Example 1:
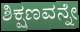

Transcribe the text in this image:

ಶಿಕ್ಷಣವನ್ನೇ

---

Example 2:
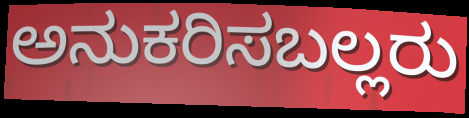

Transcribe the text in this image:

ಅನುಕರಿಸಬಲ್ಲರು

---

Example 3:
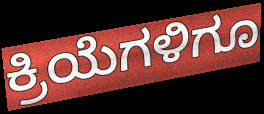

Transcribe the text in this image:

ಕ್ರಿಯೆಗಳಿಗೂ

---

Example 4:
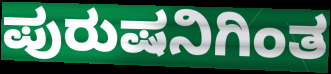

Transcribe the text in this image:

ಪುರುಷನಿಗಿಂತ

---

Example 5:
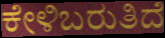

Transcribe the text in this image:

ಕೇಳಿಬರುತಿದೆ